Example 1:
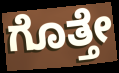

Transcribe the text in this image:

ಗೊತ್ತೇ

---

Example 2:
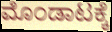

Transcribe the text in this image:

ಮೊಂಡಾಟಕ್ಕೆ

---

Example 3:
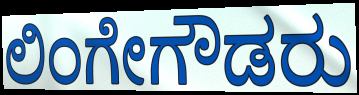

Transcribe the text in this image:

ಲಿಂಗೇಗೌಡರು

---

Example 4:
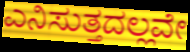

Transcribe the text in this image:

ಎನಿಸುತ್ತದಲ್ಲವೇ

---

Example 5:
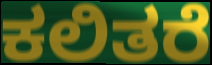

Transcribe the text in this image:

ಕಲಿತರೆ